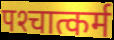
पश्चात्कर्म